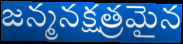
జన్మనక్షత్రమైన